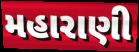
મહારાણી